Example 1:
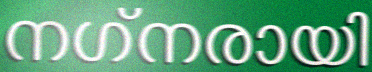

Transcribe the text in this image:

നഗ്‌നരായി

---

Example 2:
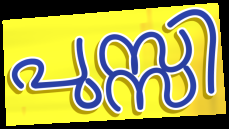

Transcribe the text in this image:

പുസ്സി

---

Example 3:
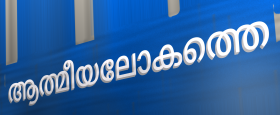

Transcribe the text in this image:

ആത്മീയലോകത്തെ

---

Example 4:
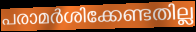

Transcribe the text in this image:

പരാമർശിക്കേണ്ടതില്ല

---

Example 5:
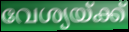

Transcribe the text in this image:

വേശ്യയ്ക്ക്